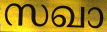
സഖാ